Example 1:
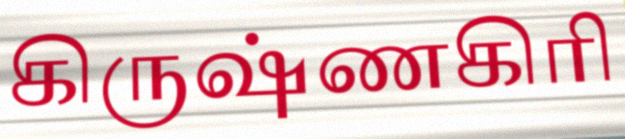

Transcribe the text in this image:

கிருஷ்ணகிரி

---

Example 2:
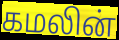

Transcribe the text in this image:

கமலின்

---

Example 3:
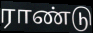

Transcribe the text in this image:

ராண்டு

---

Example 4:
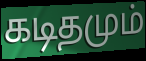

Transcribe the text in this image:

கடிதமும்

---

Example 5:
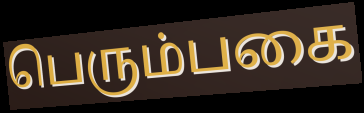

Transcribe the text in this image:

பெரும்பகை